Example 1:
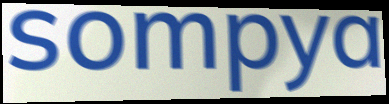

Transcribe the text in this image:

sompya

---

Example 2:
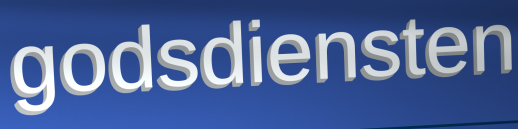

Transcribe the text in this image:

godsdiensten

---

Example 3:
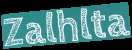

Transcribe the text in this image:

Zalhlta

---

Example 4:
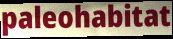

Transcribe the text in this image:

paleohabitat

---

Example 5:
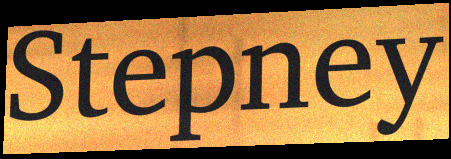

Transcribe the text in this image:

Stepney